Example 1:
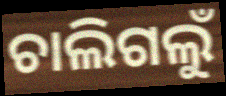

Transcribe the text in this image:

ଚାଲିଗଲୁଁ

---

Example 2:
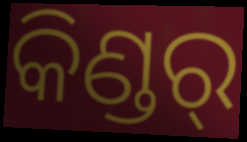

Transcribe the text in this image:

କିଣ୍ଡର୍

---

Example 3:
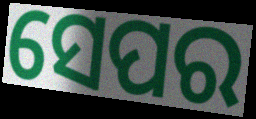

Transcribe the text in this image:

ସେପର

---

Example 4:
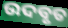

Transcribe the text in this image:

ଉଦବୃତ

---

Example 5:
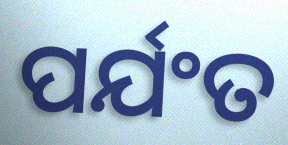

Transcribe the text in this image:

ପର୍ଯଂତ